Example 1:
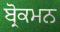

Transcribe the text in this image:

ਬ੍ਰੋਕਮਨ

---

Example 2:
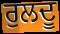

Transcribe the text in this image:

ਰੁਲਦੂ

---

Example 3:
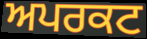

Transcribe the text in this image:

ਅਪਰਕਟ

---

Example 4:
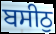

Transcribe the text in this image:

ਬਸੀਠੁ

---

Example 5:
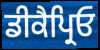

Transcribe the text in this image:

ਡੀਕੈਪ੍ਰਿਓ